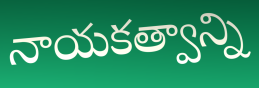
నాయకత్వాన్ని